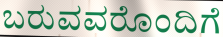
ಬರುವವರೊಂದಿಗೆ